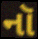
નૉ